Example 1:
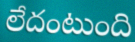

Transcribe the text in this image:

లేదంటుంది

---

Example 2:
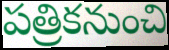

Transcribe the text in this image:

పత్రికనుంచి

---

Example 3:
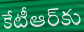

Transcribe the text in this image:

కేటీఆర్‌కు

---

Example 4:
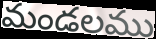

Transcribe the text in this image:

మండలము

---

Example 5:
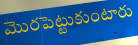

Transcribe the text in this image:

మొరపెట్టుకుంటారు